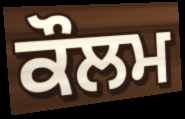
ਕੌਲਮ